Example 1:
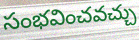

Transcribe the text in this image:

సంభవించవచ్చు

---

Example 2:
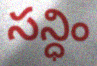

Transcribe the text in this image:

సన్ధిం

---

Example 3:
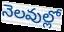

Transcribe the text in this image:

నెలవుల్లో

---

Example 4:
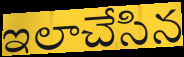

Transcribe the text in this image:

ఇలాచేసిన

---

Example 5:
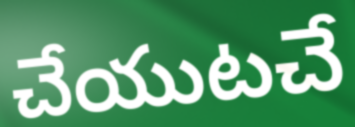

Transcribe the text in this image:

చేయుటచే